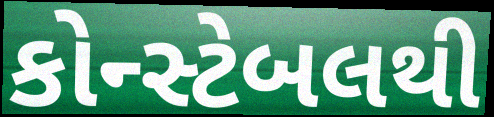
કોન્સ્ટેબલથી